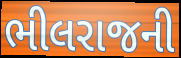
ભીલરાજની